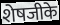
शेषजीके